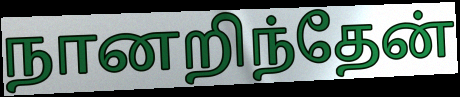
நானறிந்தேன்